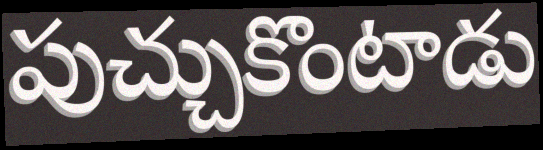
పుచ్చుకొంటాడు